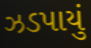
ઝડપાયું